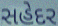
સહેદર